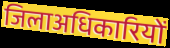
जिलाअधिकारियों